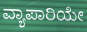
ವ್ಯಾಪಾರಿಯೇ